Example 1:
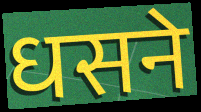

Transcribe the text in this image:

धसने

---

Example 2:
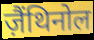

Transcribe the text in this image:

ज़ैंथिनोल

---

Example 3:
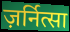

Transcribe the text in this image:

ज़र्नित्सा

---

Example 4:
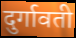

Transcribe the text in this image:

दुर्गावती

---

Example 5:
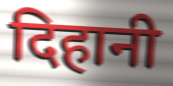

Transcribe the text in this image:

दिहानी